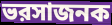
ভরসাজনক